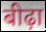
बीढ़ा